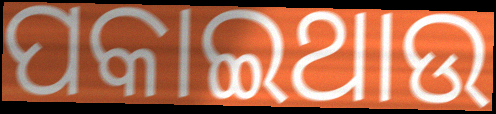
ପକାଇଥାଉ